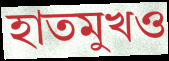
হাতমুখও